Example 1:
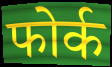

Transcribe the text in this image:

फोर्क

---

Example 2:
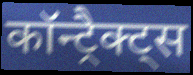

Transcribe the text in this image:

कॉन्‍ट्रैक्‍ट्स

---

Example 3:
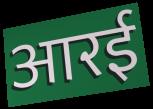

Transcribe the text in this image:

आरई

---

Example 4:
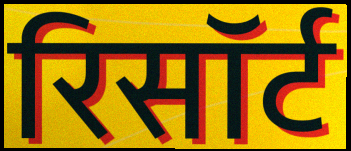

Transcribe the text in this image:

रिसॉर्ट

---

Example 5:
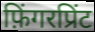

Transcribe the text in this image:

फ़िंगरप्रिंट